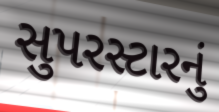
સુપરસ્ટારનું